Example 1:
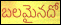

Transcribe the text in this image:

బలమైనదో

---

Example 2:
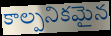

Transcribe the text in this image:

కాల్పనికమైన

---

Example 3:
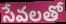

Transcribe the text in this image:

సేవలతో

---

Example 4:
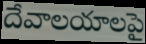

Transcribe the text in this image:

దేవాలయాలపై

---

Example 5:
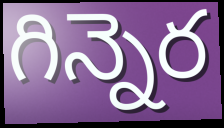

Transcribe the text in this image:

గిన్నెర